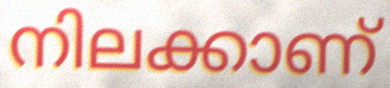
നിലക്കാണ്